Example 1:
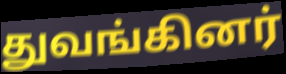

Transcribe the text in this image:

துவங்கினர்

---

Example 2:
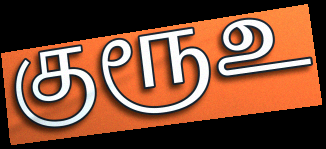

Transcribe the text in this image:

குரூஉ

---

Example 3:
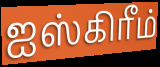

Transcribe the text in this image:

ஐஸ்கிரீம்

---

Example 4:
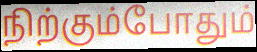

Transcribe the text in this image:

நிற்கும்போதும்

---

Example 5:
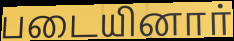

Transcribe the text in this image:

படையினார்